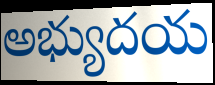
అభ్యుదయ